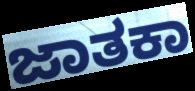
ಜಾತಕಾ